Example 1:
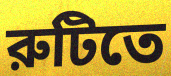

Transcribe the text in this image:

রুটিতে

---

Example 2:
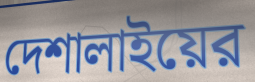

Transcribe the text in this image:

দেশালাইয়ের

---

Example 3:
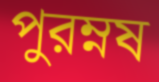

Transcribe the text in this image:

পুরম্নষ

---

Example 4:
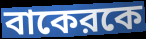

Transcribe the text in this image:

বাকেরকে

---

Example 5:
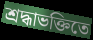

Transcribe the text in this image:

শ্রদ্ধাভক্তিতে